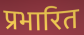
प्रभारित